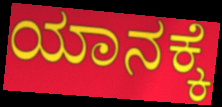
ಯಾನಕ್ಕೆ